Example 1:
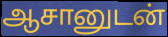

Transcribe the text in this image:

ஆசானுடன்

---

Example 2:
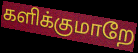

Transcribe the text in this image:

களிக்குமாறே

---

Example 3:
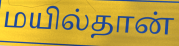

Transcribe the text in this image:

மயில்தான்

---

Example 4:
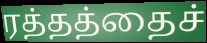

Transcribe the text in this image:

ரத்தத்தைச்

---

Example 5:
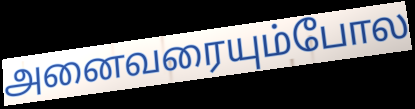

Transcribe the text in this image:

அனைவரையும்போல